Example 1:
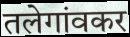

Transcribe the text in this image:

तलेगांवकर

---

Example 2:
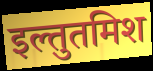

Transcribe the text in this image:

इल्तुतमिश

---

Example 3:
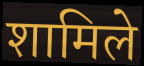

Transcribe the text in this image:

शामिले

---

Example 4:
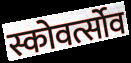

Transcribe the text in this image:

स्कोवर्त्सोव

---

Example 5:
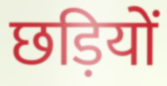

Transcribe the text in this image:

छड़ियों